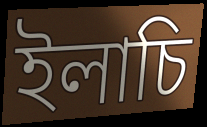
ইলাচি